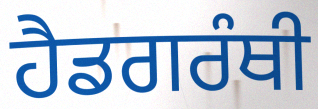
ਹੈਡਗਰੰਥੀ